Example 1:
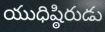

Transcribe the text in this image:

యుధిష్ఠిరుడు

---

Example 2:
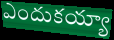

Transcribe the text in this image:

ఎందుకయ్యా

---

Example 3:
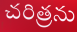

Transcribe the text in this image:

చరిత్రను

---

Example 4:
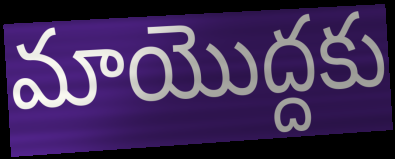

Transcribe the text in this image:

మాయొద్దకు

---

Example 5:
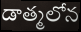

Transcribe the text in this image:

డాత్మలోన